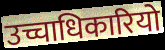
उच्चाधिकारियो